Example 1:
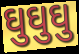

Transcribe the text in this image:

ઘુઘુઘુ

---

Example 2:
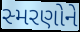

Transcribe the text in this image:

સ્મરણોને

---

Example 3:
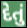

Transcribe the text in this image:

દેતું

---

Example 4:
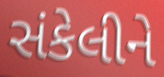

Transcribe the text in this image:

સંકેલીને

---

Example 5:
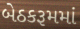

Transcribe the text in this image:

બેઠકરૂમમાં